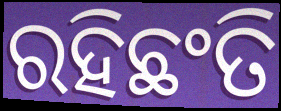
ରହିଛଂତି